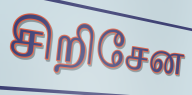
சிறிசேன